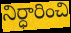
నిర్ధారించి